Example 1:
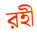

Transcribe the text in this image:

রহী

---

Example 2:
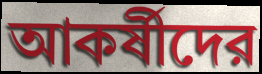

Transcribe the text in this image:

আকর্ষীদের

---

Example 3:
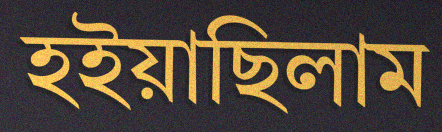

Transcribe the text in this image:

হইয়াছিলাম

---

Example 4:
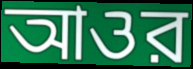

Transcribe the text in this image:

আওর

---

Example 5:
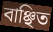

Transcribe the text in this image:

বাঞ্ছিত